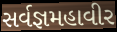
સર્વજ્ઞમહાવીર